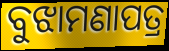
ବୁଝାମଣାପତ୍ର